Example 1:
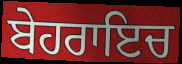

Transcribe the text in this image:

ਬੇਹਰਾਇਚ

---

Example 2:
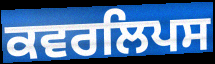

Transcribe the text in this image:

ਕਵਰਲਿਪਸ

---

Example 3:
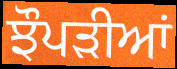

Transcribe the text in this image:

ਝੌਪੜੀਆਂ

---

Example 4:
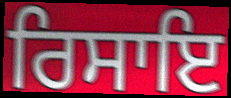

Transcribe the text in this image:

ਰਿਸਾਇ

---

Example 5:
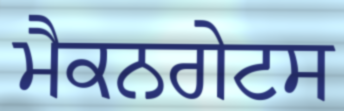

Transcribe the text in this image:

ਮੈਕਨਗੇਟਸ